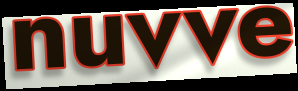
nuvve